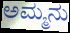
ಅಮ್ಮನು